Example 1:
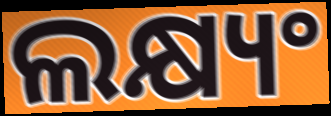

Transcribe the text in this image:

ଲକ୍ଷ୍ୟଂ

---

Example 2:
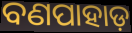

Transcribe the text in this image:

ବଣପାହାଡ଼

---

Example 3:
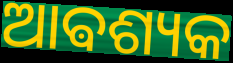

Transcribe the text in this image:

ଆଵଶ୍ୟକ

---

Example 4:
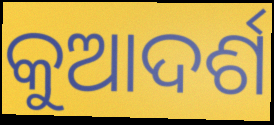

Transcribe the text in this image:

କୁଆଦର୍ଶ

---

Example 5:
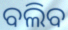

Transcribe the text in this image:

ବଲିବ